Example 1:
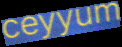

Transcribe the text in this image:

ceyyum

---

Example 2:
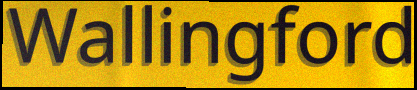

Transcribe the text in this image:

Wallingford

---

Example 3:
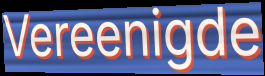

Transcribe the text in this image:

Vereenigde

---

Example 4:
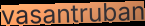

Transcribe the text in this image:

vasantruban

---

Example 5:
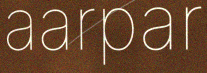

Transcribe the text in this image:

aarpar